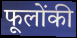
फूलोंकी